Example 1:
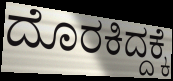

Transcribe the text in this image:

ದೊರಕಿದ್ದಕ್ಕೆ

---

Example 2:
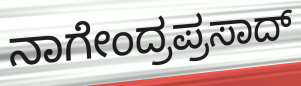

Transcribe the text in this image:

ನಾಗೇಂದ್ರಪ್ರಸಾದ್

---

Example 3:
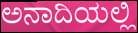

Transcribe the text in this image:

ಅನಾದಿಯಲ್ಲಿ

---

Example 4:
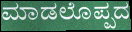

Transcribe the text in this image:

ಮಾಡಲೊಪ್ಪದ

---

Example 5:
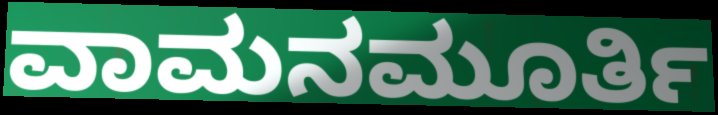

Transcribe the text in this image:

ವಾಮನಮೂರ್ತಿ